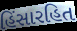
હિંસારહિત